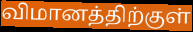
விமானத்திற்குள்